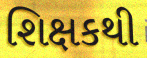
શિક્ષકથી